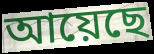
আয়েছে